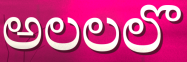
అలలలొ